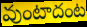
వుంటాదంట